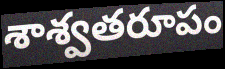
శాశ్వతరూపం